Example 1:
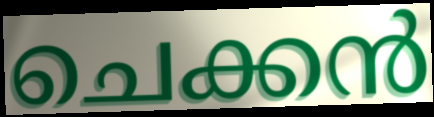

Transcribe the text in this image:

ചെക്കൻ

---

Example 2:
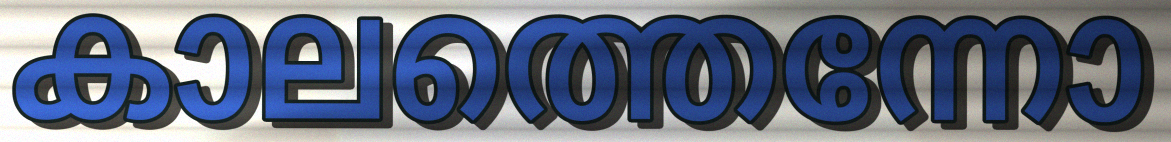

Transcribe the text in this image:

കാലത്തെന്നോ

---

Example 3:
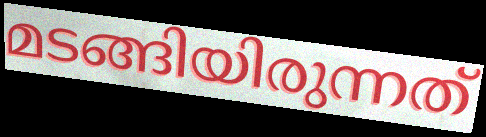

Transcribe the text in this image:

മടങ്ങിയിരുന്നത്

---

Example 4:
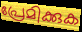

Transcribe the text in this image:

പ്രേമിക്കുക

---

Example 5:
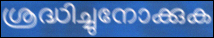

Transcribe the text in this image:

ശ്രദ്ധിച്ചുനോക്കുക